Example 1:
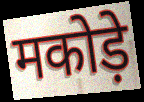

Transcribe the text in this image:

मकोड़े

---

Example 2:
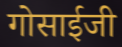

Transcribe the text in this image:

गोसाईजी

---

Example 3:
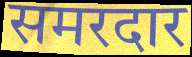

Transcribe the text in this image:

समरदार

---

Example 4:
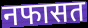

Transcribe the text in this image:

नफासत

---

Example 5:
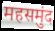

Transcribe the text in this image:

महसमुंद